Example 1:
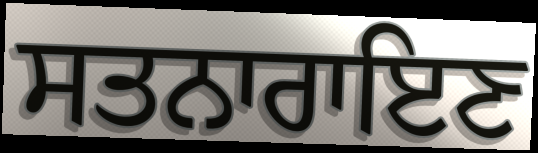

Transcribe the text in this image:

ਸਤਨਾਰਾਇਣ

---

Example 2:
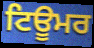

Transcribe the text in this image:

ਟਿਊਮਰ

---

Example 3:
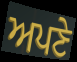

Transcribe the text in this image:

ਅਪਣੇ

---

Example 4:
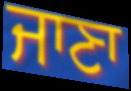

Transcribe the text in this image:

ਜਾਣਾ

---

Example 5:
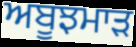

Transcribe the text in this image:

ਅਬੂਝਮਾੜ